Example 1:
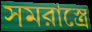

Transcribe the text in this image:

সমরাস্ত্রে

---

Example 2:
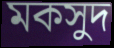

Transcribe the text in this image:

মকসুদ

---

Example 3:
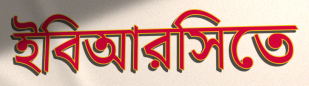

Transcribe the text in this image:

ইবিআরসিতে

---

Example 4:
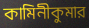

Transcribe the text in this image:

কামিনীকুমার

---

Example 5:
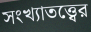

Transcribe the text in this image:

সংখ্যাতত্ত্বের